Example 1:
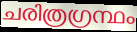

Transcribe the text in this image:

ചരിത്രഗ്രന്ഥം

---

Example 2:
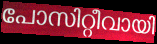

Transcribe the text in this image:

പോസിറ്റീവായി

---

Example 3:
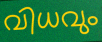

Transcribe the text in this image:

വിധവും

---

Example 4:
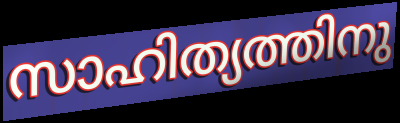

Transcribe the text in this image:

സാഹിത്യത്തിനു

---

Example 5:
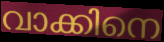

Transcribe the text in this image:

വാക്കിനെ